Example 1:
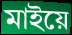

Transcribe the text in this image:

মাইয়ে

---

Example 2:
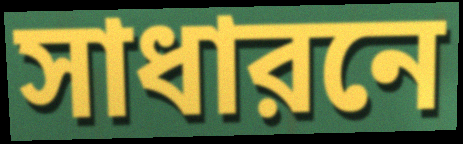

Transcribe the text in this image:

সাধারনে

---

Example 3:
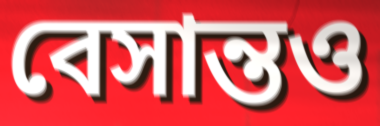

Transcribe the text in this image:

বেসান্তও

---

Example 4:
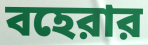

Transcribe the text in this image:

বহেরার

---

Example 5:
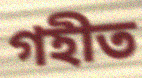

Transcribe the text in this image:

গহীত